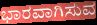
ಭಾರವಾಗಿಸುವ